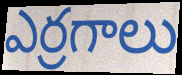
ఎర్రగాలు